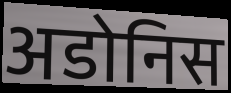
अडोनिस